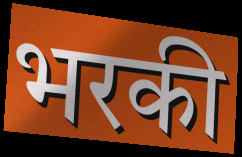
भरकी